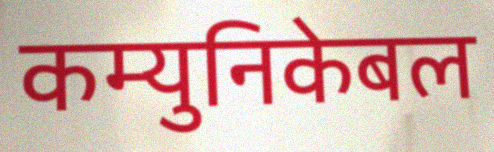
कम्युनिकेबल